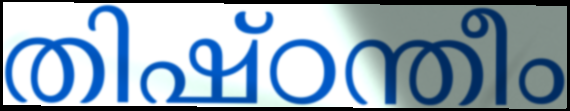
തിഷ്ഠന്തീം